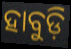
ହାବୁଡ଼ି